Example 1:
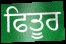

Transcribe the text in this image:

ਫਿਤੂਰ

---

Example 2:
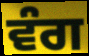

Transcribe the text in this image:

ਵੰਗ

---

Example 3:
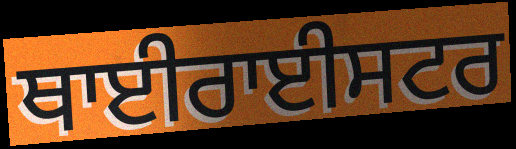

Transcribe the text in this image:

ਥਾਈਰਾਈਸਟਰ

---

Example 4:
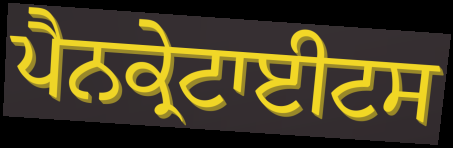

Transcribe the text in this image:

ਪੈਨਕ੍ਰੇਟਾਈਟਸ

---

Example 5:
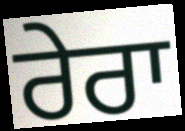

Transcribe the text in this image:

ਰੇਰਾ